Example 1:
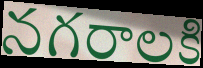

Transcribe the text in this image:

నగరాలకి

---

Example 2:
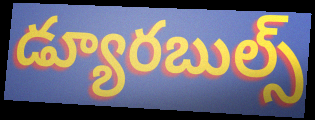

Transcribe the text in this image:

డ్యూరబుల్స్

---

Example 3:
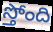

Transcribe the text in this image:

స్తోంది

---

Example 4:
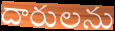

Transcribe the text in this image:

దారులను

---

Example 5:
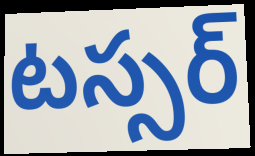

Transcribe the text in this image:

టస్సర్